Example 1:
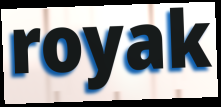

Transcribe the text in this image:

royak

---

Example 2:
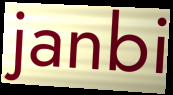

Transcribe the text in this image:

janbi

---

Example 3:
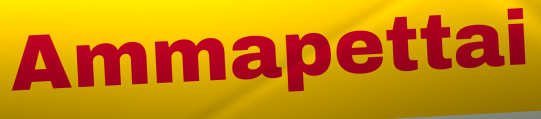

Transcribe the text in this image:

Ammapettai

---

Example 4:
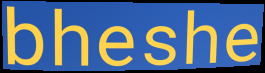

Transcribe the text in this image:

bheshe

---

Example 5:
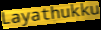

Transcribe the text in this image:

Layathukku